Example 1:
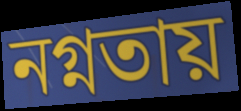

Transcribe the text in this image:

নগ্নতায়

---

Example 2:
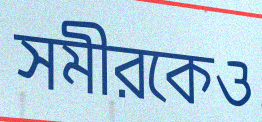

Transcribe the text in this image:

সমীরকেও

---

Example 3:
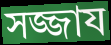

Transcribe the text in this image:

সজ্জায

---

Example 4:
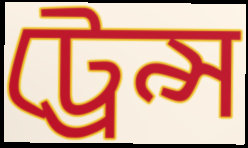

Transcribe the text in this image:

ট্রেন্স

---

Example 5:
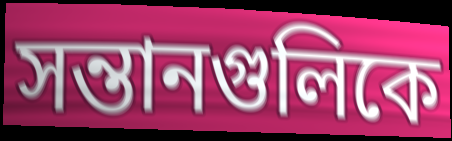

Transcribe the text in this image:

সন্তানগুলিকে